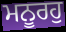
ਮਨੂਰਹੁ